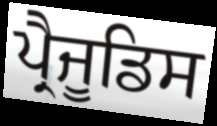
ਪ੍ਰੈਜੂਡਿਸ